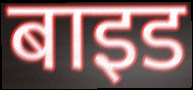
बाइड